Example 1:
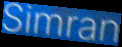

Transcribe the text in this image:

Simran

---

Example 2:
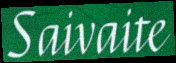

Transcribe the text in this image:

Saivaite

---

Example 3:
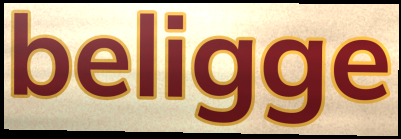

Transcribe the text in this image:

beligge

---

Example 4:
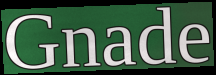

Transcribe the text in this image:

Gnade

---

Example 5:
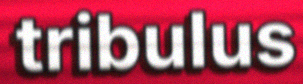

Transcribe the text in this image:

tribulus